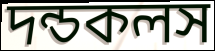
দন্ডকলস